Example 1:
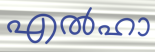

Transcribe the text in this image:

എൽഹാ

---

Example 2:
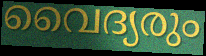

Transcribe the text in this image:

വൈദ്യരും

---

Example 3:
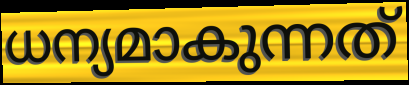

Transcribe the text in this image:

ധന്യമാകുന്നത്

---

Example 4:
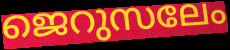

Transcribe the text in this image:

ജെറുസലേം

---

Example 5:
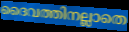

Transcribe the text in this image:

ദൈവത്തിനല്ലാതെ